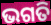
ଭଗତି